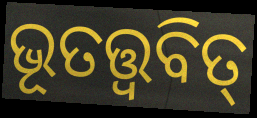
ଭୂତତ୍ତ୍ୱବିତ୍